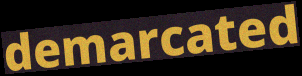
demarcated